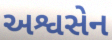
અશ્વસેન